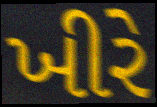
ખીરે